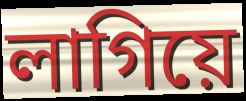
লাগিয়ে